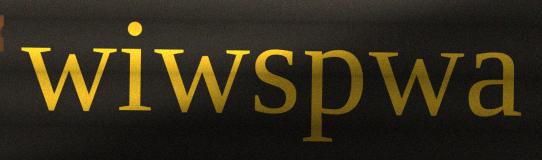
wiwspwa